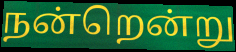
நன்றென்று